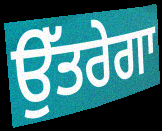
ਉੱਤਰੇਗਾ